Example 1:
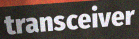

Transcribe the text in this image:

transceiver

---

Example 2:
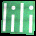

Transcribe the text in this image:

lili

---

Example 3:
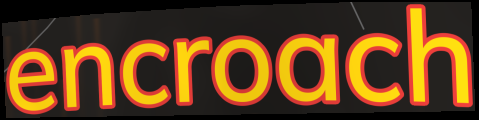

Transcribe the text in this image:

encroach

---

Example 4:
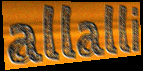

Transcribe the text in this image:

allalli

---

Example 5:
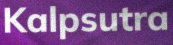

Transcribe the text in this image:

Kalpsutra